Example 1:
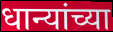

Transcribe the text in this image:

धान्यांच्या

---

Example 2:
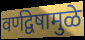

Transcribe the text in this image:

वर्णद्वेषामुळे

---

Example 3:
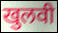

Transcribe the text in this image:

खुलवी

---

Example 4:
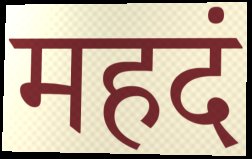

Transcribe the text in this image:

महदं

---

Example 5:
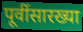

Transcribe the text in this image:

पूर्वीसारख्या